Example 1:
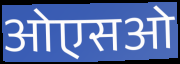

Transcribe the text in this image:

ओएसओ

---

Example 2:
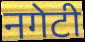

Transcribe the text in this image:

नगेटी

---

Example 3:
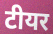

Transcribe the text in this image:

टीयर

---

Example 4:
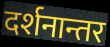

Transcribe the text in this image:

दर्शनान्तर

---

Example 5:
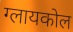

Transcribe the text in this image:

ग्लायकोल